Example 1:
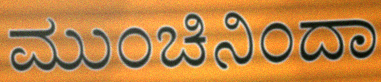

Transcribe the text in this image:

ಮುಂಚಿನಿಂದಾ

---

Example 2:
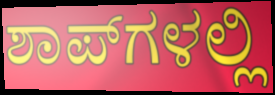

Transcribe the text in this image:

ಶಾಪ್‌ಗಳಲ್ಲಿ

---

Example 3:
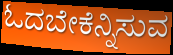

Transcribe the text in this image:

ಓದಬೇಕೆನ್ನಿಸುವ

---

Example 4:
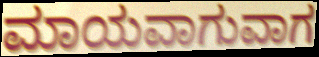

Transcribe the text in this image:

ಮಾಯವಾಗುವಾಗ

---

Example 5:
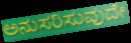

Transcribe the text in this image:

ಅನುಸರಿಸುವುದೇ